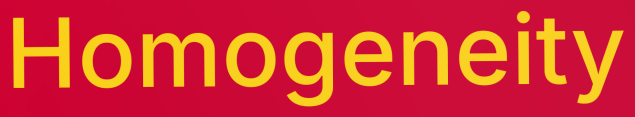
Homogeneity